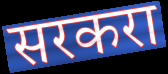
सरकरा